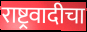
राष्ट्रवादीचा